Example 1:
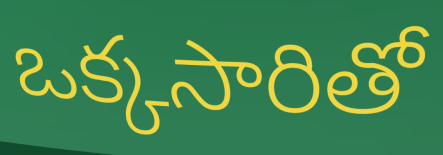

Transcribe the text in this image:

ఒక్కసారితో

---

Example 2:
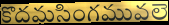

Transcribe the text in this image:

కొదమసింగమువలె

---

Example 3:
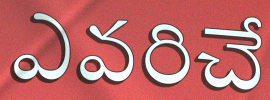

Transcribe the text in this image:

ఎవరిచే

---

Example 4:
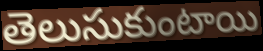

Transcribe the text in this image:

తెలుసుకుంటాయి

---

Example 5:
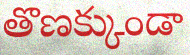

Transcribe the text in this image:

తొణక్కుండా